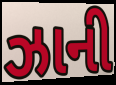
ઝાની